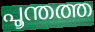
പൂന്തത്ത